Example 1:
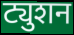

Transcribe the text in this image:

ट्युशन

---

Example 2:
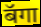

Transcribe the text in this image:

बॅगा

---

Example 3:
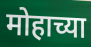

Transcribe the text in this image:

मोहाच्या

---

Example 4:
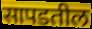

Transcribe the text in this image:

सापडतील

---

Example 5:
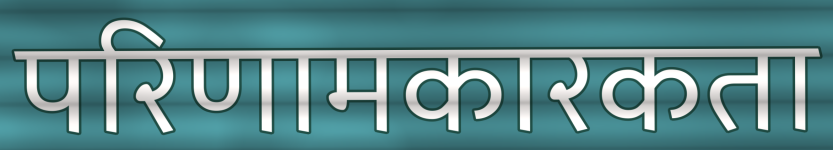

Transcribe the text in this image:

परिणामकारकता